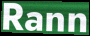
Rann